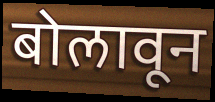
बोलावून